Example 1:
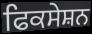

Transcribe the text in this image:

ਫਿਕਸੇਸ਼ਨ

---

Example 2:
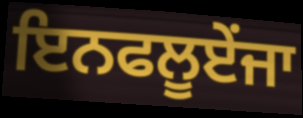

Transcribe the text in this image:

ਇਨਫਲੂਏਂਜਾ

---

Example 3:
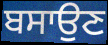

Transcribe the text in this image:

ਬਸਾਉਣ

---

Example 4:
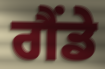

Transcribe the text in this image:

ਗੈਂਡੇ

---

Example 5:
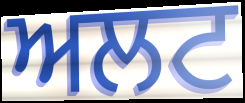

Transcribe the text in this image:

ਅਲਟ